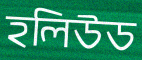
হলিউড